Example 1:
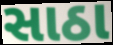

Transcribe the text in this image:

સાઠા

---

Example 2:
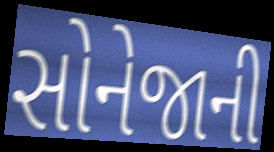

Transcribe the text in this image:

સોનેજાની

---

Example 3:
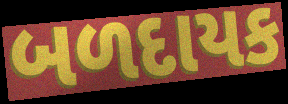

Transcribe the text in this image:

બળદાયક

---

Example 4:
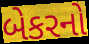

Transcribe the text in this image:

બેકરનો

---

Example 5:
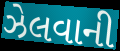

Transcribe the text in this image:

ઝેલવાની